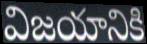
విజయానికి